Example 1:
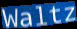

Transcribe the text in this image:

Waltz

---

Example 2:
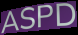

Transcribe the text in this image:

ASPD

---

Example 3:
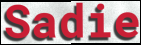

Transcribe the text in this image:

Sadie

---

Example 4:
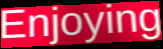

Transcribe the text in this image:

Enjoying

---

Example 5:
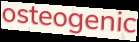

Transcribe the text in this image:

osteogenic